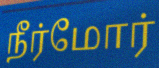
நீர்மோர்